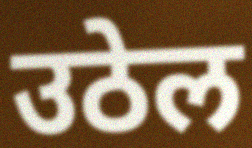
उठेल